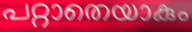
പറ്റാതെയാകും